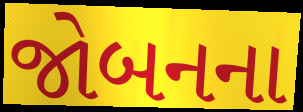
જોબનના